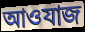
আওযাজ